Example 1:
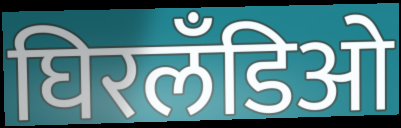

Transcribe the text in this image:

घिरलँडिओ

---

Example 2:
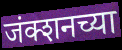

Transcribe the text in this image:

जंक्शनच्या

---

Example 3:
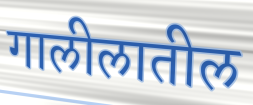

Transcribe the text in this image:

गालीलातील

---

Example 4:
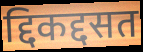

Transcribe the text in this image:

द्दिकद्दसत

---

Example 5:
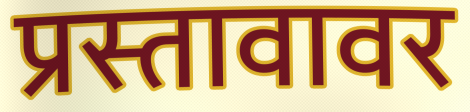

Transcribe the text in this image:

प्रस्तावावर